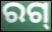
ରଗ୍